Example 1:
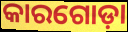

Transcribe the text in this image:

କାରଗୋଡ଼ା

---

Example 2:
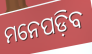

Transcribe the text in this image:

ମନେପଡ଼ିବ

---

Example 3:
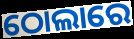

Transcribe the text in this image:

ଠୋଲାରେ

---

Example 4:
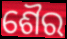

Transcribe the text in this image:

ଶୈର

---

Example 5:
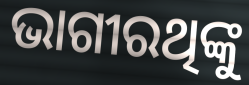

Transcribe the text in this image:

ଭାଗୀରଥିଙ୍କୁ